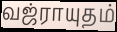
வஜ்ராயுதம்